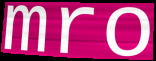
mro